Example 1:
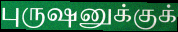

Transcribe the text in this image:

புருஷனுக்குக்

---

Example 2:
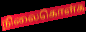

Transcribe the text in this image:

நிலைகொள்க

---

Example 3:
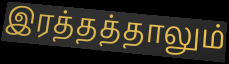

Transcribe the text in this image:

இரத்தத்தாலும்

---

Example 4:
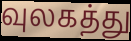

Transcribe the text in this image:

வுலகத்து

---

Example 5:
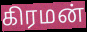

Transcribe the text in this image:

கிரமன்